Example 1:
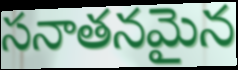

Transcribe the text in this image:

సనాతనమైన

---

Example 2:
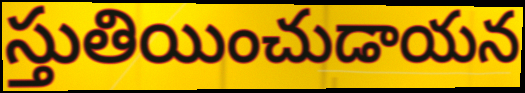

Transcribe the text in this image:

స్తుతియించుడాయన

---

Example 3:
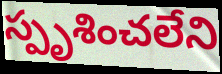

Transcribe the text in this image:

స్పృశించలేని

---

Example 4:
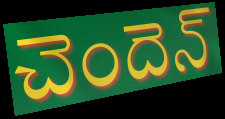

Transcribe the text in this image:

చెందెన్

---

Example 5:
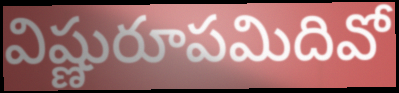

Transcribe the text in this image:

విష్ణురూపమిదివో